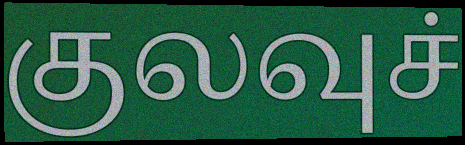
குலவுச்